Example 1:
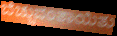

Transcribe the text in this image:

ಬೆಚ್ಚುವಂತಾಯಿತು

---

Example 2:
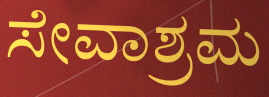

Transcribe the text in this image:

ಸೇವಾಶ್ರಮ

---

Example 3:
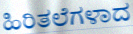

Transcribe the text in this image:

ಹಿರಿತಲೆಗಳಾದ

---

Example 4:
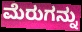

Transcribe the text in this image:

ಮೆರುಗನ್ನು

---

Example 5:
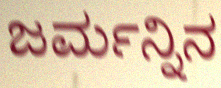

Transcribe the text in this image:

ಜರ್ಮನ್ನಿನ